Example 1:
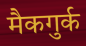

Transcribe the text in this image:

मैकगुर्क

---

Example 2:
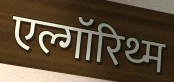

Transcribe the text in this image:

एल्गॉरिथ्म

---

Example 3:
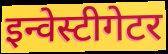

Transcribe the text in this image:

इन्वेस्टीगेटर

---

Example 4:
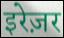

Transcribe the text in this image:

इरेज़र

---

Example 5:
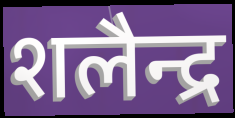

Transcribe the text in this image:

शलैन्द्र